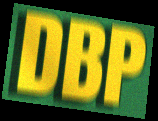
DBP